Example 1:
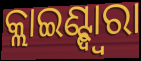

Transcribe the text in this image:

କ୍ଲାଇଣ୍ଟ୍ଦ୍ୱାରା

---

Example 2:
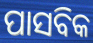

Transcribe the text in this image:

ପାସବିକ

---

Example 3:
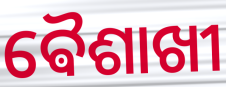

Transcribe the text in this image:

ଵୈଶାଖୀ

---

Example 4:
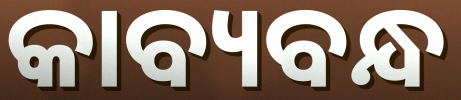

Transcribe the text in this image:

କାବ୍ୟବନ୍ଧ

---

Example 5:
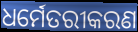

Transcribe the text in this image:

ଧର୍ମେତରୀକରଣ